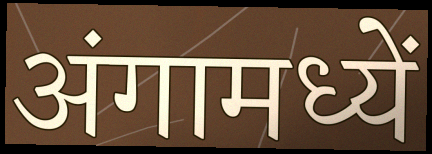
अंगामध्यें